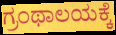
ಗ್ರಂಥಾಲಯಕ್ಕೆ